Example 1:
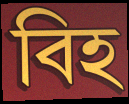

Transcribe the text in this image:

বিহ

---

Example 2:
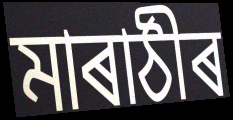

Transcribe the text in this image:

মাৰাঠীৰ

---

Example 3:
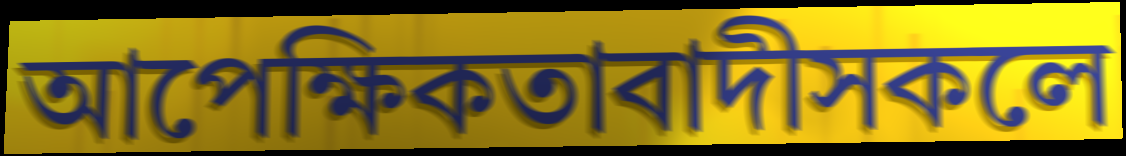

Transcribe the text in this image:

আপেক্ষিকতাবাদীসকলে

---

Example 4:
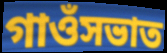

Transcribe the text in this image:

গাওঁসভাত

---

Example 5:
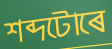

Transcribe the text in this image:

শব্দটোৰে